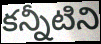
కన్నీటిని